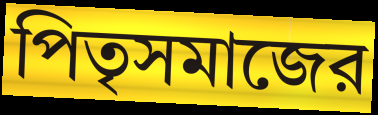
পিতৃসমাজের